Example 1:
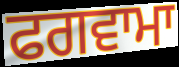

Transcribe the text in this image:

ਫਗਵਾਮਾ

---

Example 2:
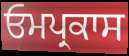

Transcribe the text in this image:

ਓਮਪ੍ਰਕਾਸ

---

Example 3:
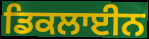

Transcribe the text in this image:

ਡਿਕਲਾਈਨ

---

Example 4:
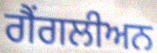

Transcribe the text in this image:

ਗੈਂਗਲੀਅਨ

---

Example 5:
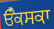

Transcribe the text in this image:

ਓੈਕਸਕਾ